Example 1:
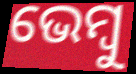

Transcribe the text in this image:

ଭେମ୍ବୁ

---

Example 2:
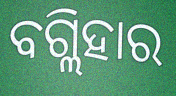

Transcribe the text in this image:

ବଗ୍ଲିହାର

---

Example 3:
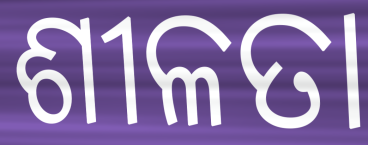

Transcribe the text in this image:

ଶୀଳତା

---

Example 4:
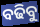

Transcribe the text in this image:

ବଢିବୁ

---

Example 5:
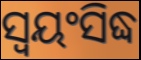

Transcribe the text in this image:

ସ୍ୱୟଂସିଦ୍ଧ